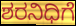
ಶರನಿಧಿಗೆ